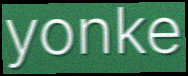
yonke